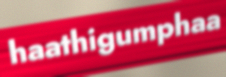
haathigumphaa